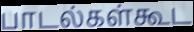
பாடல்கள்கூட